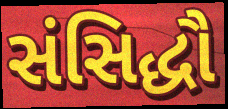
સંસિદ્ધૌ